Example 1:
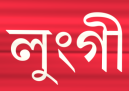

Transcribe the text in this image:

লুংগী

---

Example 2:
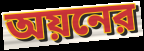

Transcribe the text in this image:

অয়নের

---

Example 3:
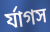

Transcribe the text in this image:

র্যাগস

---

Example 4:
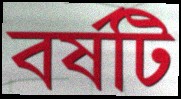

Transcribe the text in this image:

বর্ষটি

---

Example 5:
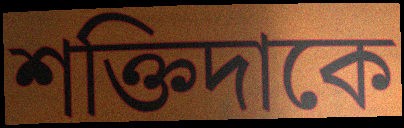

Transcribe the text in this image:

শক্তিদাকে